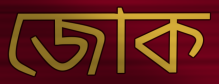
জোক